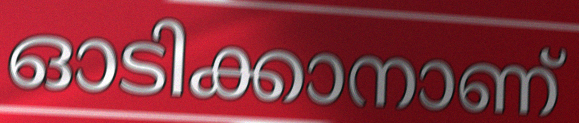
ഓടിക്കാനാണ്